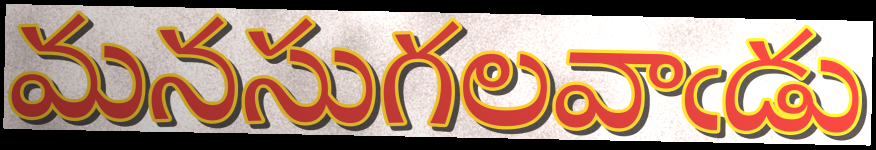
మనసుగలవాఁడు